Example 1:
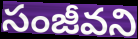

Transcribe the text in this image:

సంజీవని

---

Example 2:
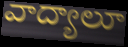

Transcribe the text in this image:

వాద్యాలూ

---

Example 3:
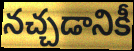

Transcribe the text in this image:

నచ్చడానికీ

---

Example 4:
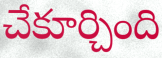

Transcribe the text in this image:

చేకూర్చింది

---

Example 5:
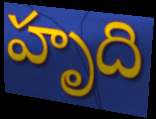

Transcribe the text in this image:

హృది